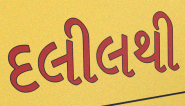
દલીલથી